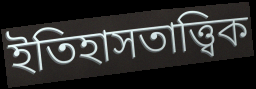
ইতিহাসতাত্ত্বিক